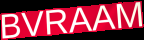
BVRAAM